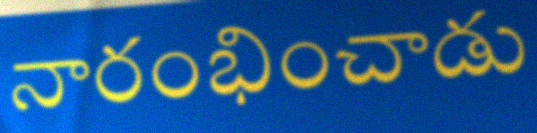
నారంభించాడు